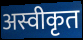
अस्‍वीकृत